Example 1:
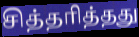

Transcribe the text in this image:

சித்தரித்தது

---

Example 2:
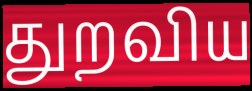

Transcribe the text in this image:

துறவிய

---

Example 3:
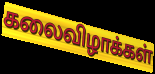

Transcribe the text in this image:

கலைவிழாக்கள்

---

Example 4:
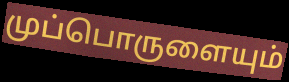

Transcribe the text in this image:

முப்பொருளையும்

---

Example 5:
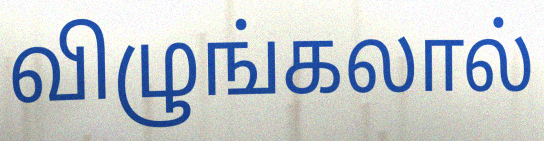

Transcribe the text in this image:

விழுங்கலால்